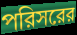
পরিসরের